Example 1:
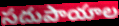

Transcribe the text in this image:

సదుపాయాల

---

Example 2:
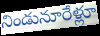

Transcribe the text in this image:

నిండునూరేళ్లూ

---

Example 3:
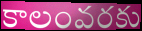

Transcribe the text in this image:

కాలంవరకు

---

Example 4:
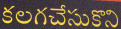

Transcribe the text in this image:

కలగచేసుకొని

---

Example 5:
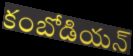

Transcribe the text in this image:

కంబోడియన్